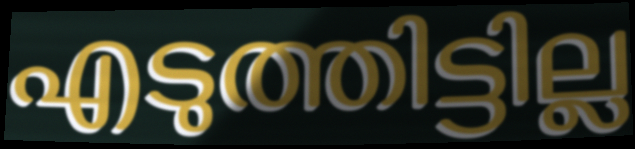
എടുത്തിട്ടില്ല